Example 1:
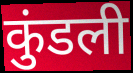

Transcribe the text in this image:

कुंडली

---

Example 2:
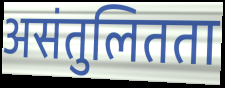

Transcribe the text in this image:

असंतुलितता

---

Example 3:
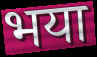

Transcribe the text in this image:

भया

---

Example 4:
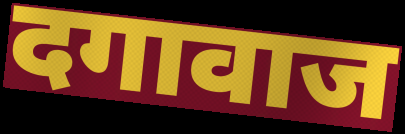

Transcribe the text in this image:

दगावाज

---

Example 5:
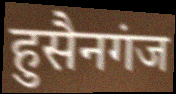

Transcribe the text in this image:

हुसैनगंज